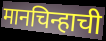
मानचिन्हाची